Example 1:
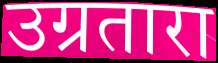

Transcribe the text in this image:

उग्रतारा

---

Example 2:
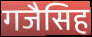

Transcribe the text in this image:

गजैसिह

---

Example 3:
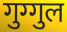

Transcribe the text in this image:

गुग्‍गुल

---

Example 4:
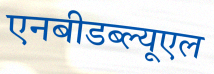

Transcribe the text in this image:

एनबीडब्ल्यूएल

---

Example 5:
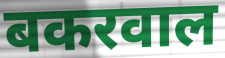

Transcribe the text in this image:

बकरवाल